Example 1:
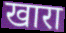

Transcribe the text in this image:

खारा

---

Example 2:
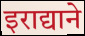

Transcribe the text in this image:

इराद्याने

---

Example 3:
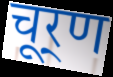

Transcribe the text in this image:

चूर्ण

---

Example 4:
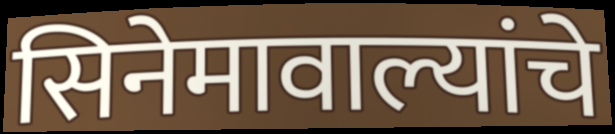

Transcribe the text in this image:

सिनेमावाल्यांचे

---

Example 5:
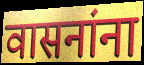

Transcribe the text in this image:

वासनांना